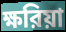
ক্ষরিয়া